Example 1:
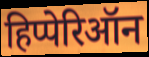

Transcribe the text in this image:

हिप्पेरिऑन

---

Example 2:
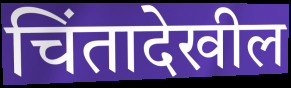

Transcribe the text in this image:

चिंतादेखील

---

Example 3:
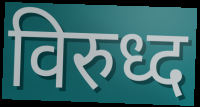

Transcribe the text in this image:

विरुध्द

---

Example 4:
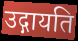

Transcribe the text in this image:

उद्गायति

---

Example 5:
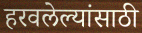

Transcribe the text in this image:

हरवलेल्यांसाठी